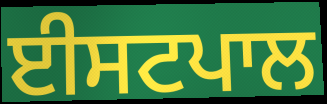
ਈਸਟਪਾਲ